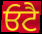
ਓਟੈ